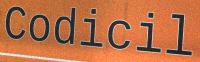
Codicil